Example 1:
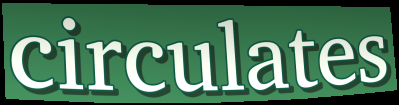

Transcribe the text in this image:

circulates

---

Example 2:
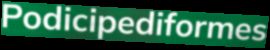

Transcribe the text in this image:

Podicipediformes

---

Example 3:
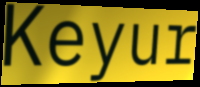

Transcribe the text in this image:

Keyur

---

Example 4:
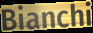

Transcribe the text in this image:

Bianchi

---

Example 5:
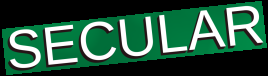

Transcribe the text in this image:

SECULAR